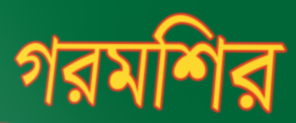
গরমশির